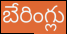
బేరింగ్లు